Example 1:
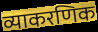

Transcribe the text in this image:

व्याकरणिक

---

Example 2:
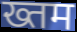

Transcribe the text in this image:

ख्तम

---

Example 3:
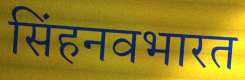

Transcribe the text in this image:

सिंहनवभारत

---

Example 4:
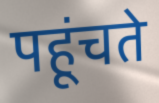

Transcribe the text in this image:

पहूंचते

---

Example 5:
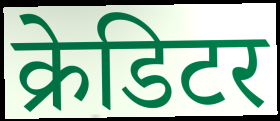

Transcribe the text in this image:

क्रेडिटर